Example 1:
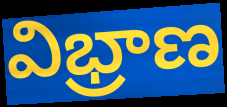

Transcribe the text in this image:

విభ్రాణ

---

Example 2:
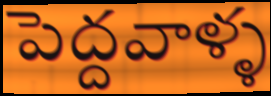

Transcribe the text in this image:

పెద్దవాళ్ళ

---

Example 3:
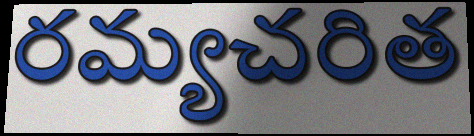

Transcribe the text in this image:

రమ్యచరిత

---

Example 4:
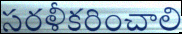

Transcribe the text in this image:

సరళీకరించాలి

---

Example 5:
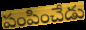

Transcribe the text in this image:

పంపించేడు